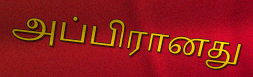
அப்பிரானது